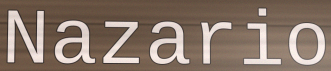
Nazario